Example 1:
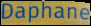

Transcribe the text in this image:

Daphane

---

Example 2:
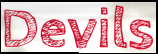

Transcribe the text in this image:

Devils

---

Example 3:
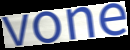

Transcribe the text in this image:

vone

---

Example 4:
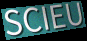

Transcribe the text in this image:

SCIEU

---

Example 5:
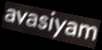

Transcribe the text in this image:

avasiyam